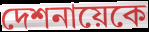
দেশনায়েকে